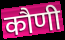
कौणी